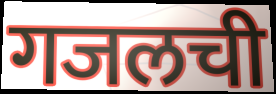
गजलची